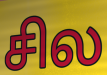
சில